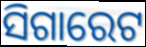
ସିଗାରେଟ